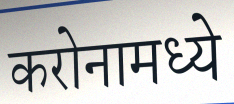
करोनामध्ये